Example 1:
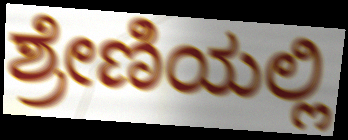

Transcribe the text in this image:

ಶ್ರೇಣಿಯಲ್ಲಿ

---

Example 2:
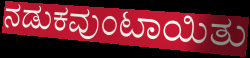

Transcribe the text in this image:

ನಡುಕವುಂಟಾಯಿತು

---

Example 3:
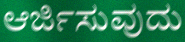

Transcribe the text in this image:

ಆರ್ಜಿಸುವುದು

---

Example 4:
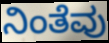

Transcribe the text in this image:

ನಿಂತೆವು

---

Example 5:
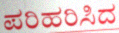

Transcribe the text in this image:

ಪರಿಹರಿಸಿದ